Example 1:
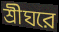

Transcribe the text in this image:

শ্রীঘরে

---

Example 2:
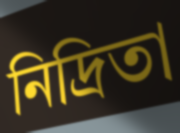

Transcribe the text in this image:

নিদ্রিতা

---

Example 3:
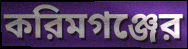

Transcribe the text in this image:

করিমগঞ্জের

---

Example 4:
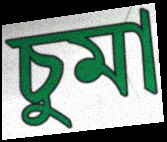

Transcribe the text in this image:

চুমা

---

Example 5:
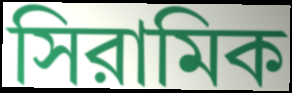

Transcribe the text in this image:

সিরামিক